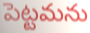
పెట్టమను